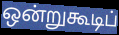
ஒன்றுகூடிப்